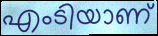
എംടിയാണ്